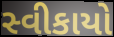
સ્વીકાયો